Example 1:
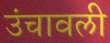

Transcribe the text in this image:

उंचावली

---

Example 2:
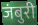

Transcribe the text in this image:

जंबुरी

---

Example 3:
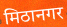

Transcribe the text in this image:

मिठानगर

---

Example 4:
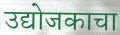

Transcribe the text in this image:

उद्योजकाचा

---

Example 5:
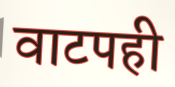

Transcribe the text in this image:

वाटपही